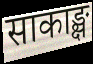
साकाङ्क्ष